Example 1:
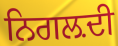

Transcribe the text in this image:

ਨਿਗਲ਼ਦੀ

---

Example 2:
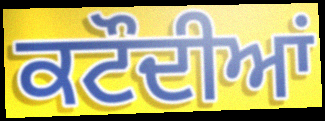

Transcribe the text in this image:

ਕਟੌਦੀਆਂ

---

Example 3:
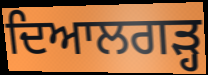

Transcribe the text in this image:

ਦਿਆਲਗੜ੍ਹ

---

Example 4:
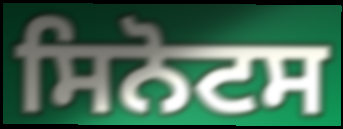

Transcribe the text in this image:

ਸਿਨੋਟਸ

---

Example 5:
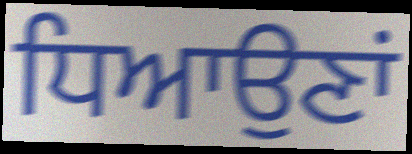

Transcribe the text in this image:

ਧਿਆਉਣਾਂ